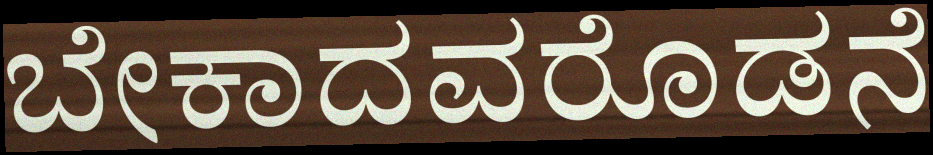
ಬೇಕಾದವರೊಡನೆ